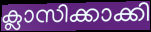
ക്ലാസിക്കാക്കി